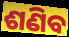
ଶଣିବ